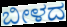
ಬೀಳದ